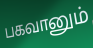
பகவானும்